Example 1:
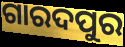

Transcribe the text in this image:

ଗାରଦପୁର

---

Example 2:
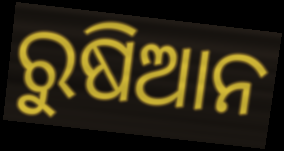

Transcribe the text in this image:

ରୁଷିଆନ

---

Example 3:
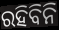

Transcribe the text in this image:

ରହିବିନି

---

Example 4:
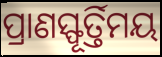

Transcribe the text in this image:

ପ୍ରାଣସ୍ଫୂର୍ତ୍ତିମୟ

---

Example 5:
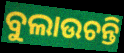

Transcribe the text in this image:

ବୁଲାଉଚନ୍ତି